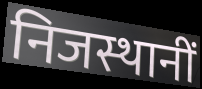
निजस्थानीं